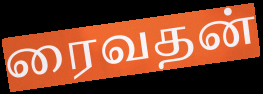
ரைவதன்